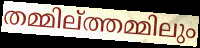
തമ്മില്ത്തമ്മിലും